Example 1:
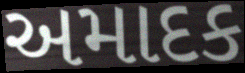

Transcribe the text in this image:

અમાદક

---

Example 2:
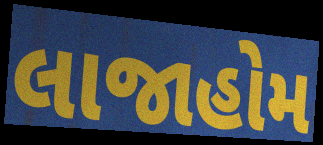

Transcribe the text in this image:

લાજાહોમ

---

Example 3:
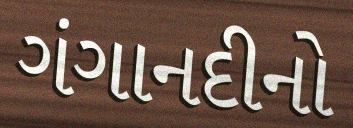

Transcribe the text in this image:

ગંગાનદીનો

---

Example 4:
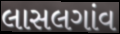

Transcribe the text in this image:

લાસલગાંવ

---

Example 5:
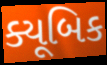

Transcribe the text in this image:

ક્યૂબિક